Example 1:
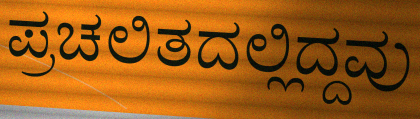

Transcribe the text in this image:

ಪ್ರಚಲಿತದಲ್ಲಿದ್ದವು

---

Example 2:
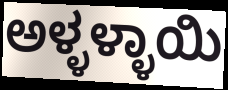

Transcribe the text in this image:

ಅಳ್ಳಳ್ಳಾಯಿ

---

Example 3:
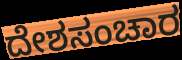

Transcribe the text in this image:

ದೇಶಸಂಚಾರ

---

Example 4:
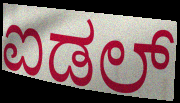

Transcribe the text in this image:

ಐಡಲ್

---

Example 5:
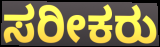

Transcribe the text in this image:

ಸರೀಕರು